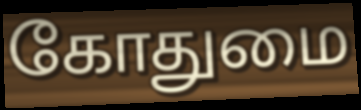
கோதுமை